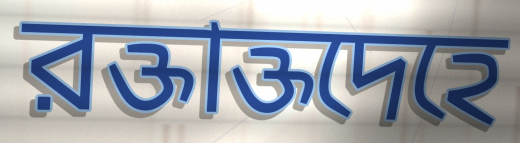
রক্তাক্তদেহে